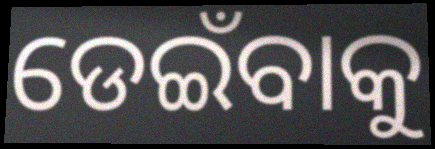
ଡେଇଁବାକୁ